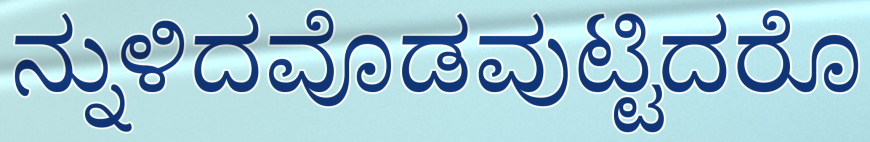
ನ್ನುಳಿದವೊಡವುಟ್ಟಿದರೊ